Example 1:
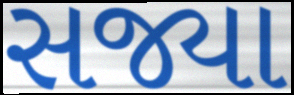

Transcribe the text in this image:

સજ્યા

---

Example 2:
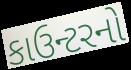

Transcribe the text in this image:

કાઉન્ટરનો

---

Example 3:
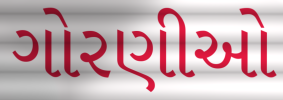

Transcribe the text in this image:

ગોરણીઓ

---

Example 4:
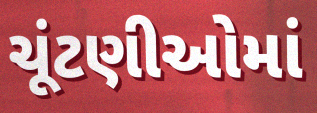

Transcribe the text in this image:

ચૂંટણીઓમાં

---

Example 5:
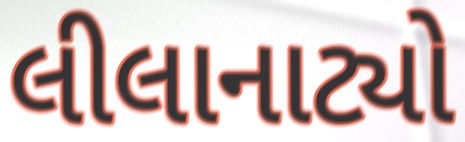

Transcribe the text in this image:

લીલાનાટ્યો